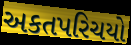
અકતપરિચયો